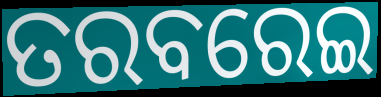
ତରବରେଇ